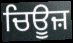
ਚਿਊਜ਼